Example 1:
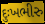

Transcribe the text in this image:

દુઃખભીરુ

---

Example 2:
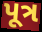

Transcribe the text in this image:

પૂત્ર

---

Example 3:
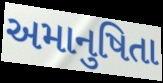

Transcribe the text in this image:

અમાનુષિતા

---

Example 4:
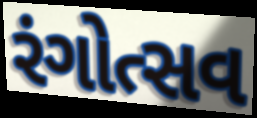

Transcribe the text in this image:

રંગોત્સવ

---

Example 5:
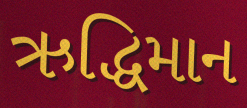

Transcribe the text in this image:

ઋદ્ધિમાન